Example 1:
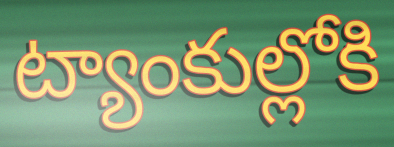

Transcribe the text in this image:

ట్యాంకుల్లోకి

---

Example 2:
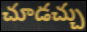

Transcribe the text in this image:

చూడచ్చు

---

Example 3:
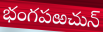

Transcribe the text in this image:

భంగపఱచున్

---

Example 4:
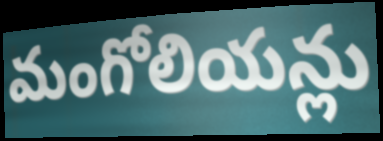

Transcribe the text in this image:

మంగోలియన్లు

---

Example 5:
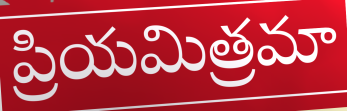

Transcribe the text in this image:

ప్రియమిత్రమా